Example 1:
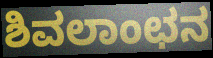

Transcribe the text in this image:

ಶಿವಲಾಂಛನ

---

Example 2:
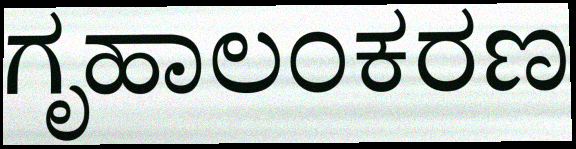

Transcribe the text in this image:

ಗೃಹಾಲಂಕರಣ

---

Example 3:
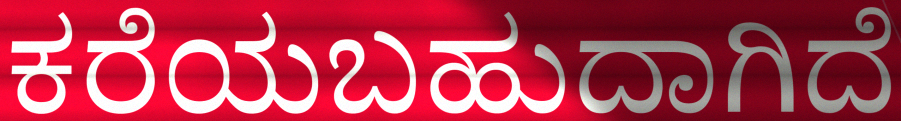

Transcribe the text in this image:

ಕರೆಯಬಹುದಾಗಿದೆ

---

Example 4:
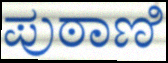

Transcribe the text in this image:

ಪುಠಾಣಿ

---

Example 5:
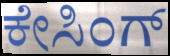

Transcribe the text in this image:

ಕೇಸಿಂಗ್